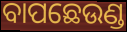
ବାପଛେଉଣ୍ଡ